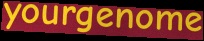
yourgenome